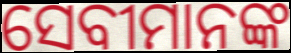
ସେବୀମାନଙ୍କ